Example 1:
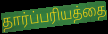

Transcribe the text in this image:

தார்ப்பரியத்தை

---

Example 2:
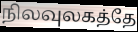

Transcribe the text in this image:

நிலவுலகத்தே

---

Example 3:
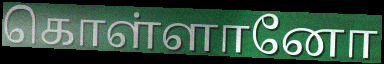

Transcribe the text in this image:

கொள்ளானோ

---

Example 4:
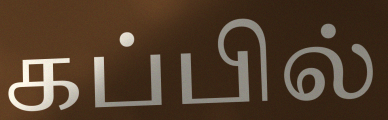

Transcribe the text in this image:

கப்பில்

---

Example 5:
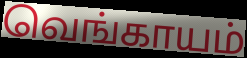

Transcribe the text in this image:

வெங்காயம்